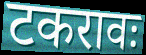
टकरावः